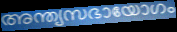
അന്ത്യസഭായോഗം